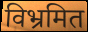
विभ्रमित